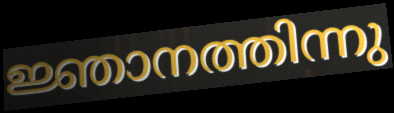
ജ്ഞാനത്തിന്നു